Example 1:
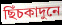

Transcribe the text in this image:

ছিঁচকাদুনে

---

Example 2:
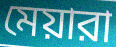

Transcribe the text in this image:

মেয়ারা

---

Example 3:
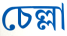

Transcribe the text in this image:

চেল্লা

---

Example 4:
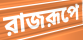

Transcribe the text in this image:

রাজরূপে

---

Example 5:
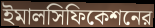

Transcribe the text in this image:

ইমালসিফিকেশনের